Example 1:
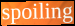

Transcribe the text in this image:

spoiling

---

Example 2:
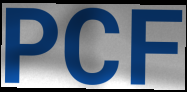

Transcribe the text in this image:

PCF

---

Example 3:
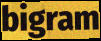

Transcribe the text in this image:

bigram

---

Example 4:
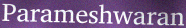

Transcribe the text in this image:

Parameshwaran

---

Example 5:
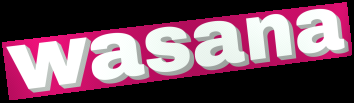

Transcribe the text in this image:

wasana